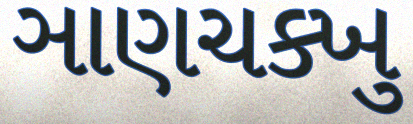
ઞાણચક્ખુ